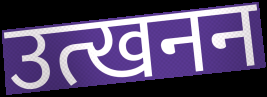
उत्‍खनन